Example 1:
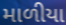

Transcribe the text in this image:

માળીયા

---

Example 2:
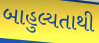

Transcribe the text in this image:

બાહુલ્યતાથી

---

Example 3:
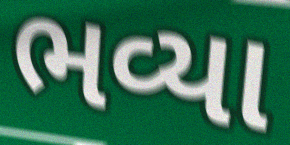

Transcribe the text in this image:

ભવ્યા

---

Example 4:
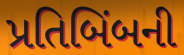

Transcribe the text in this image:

પ્રતિબિંબની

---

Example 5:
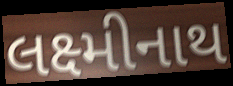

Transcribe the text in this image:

લક્ષ્મીનાથ